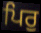
ਪਿਰੁ